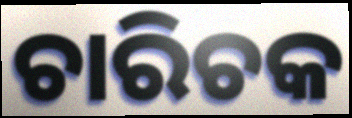
ଚାରିଚକ